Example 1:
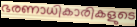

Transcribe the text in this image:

ഭരണാധികാരികളുടെ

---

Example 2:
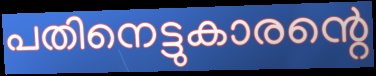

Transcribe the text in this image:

പതിനെട്ടുകാരന്റെ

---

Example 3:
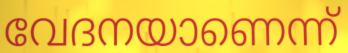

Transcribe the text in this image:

വേദനയാണെന്ന്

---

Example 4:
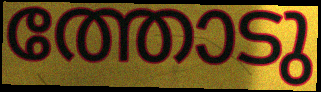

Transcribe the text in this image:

ത്തോടു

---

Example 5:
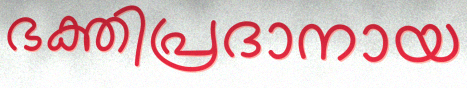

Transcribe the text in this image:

ഭക്തിപ്രദാനായ